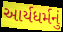
આર્યધર્મનું